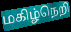
மகிழ்நெறி